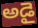
అడై